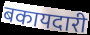
बकायदारी